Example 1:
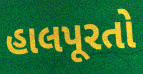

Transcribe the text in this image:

હાલપૂરતો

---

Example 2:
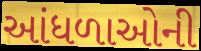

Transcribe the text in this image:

આંધળાઓની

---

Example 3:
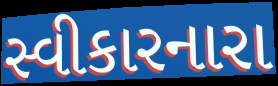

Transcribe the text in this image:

સ્વીકારનારા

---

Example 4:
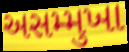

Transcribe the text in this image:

અસમ્મુખા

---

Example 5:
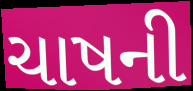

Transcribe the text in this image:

ચાષની